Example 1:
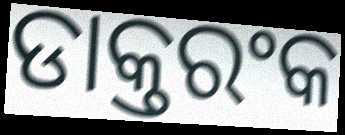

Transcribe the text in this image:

ଡାକ୍ତରଂକ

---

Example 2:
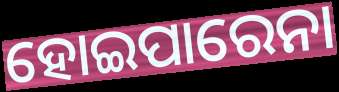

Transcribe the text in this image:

ହୋଇପାରେନା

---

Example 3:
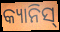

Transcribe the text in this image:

କ୍ୟାନିସ୍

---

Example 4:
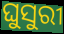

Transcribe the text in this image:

ଘୁସୁରୀ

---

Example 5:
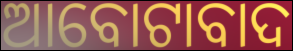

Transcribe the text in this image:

ଆବୋଟାବାଦ